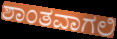
ಶಾಂತವಾಗಲಿ